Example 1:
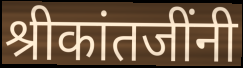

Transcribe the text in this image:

श्रीकांतजींनी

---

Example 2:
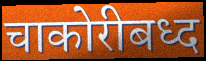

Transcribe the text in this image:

चाकोरीबध्द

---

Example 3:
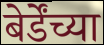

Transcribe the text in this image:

बेर्डेंच्या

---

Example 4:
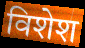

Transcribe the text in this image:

विशेश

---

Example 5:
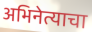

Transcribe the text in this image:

अभिनेत्याचा